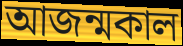
আজন্মকাল